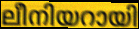
ലീനിയറായി